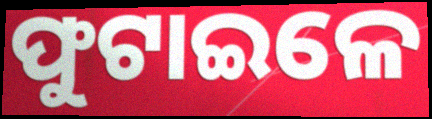
ଫୁଟାଇଳେ